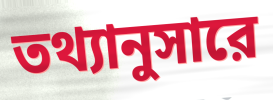
তথ্যানুসারে